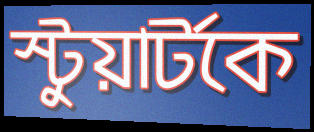
স্টুয়ার্টকে